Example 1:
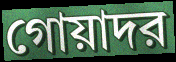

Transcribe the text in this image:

গোয়াদর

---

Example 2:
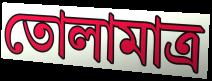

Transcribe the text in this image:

তোলামাত্র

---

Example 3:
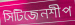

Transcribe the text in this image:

সিটিজেনশীপ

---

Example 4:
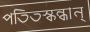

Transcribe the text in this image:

পতিতস্কন্ধান্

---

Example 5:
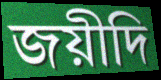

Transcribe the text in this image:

জয়ীদি